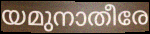
യമുനാതീരേ